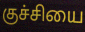
குச்சியை